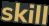
skill